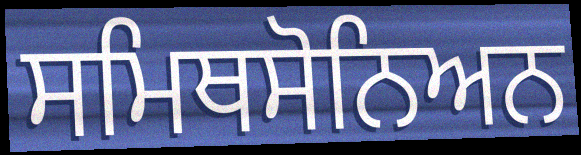
ਸਮਿਥਸੋਨਿਅਨ